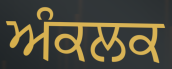
ਅੰਕਲਕ